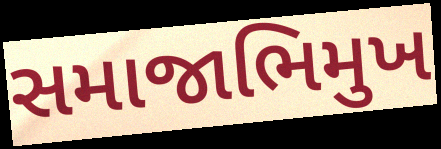
સમાજાભિમુખ